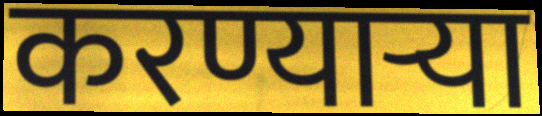
करण्यार्‍या